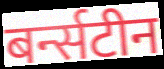
बर्न्सटीन